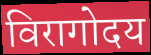
विरागोदय